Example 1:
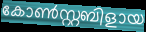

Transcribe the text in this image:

കോൺസ്റ്റബിളായ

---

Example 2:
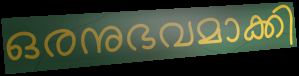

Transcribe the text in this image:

ഒരനുഭവമാക്കി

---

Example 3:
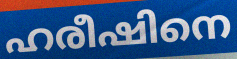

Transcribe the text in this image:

ഹരീഷിനെ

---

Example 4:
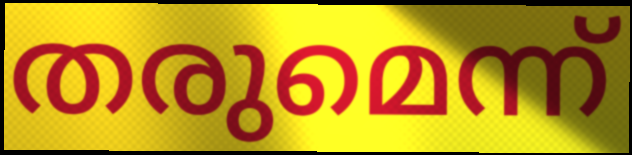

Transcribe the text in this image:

തരുമെന്ന്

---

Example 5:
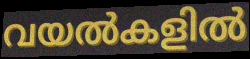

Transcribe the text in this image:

വയൽകളിൽ